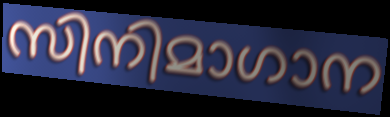
സിനിമാഗാന